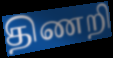
திணறி